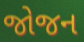
જોજન